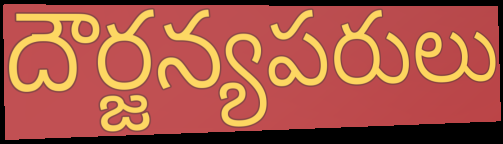
దౌర్జన్యపరులు